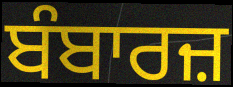
ਬੰਬਾਰਜ਼